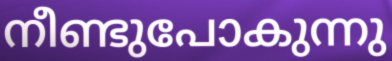
നീണ്ടുപോകുന്നു